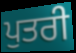
ਪੁਤਰੀ